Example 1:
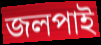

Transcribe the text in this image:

জলপাই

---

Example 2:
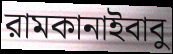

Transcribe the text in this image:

রামকানাইবাবু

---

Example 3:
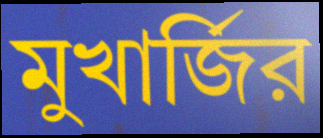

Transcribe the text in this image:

মুখার্জির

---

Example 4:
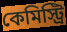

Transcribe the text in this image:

কেমিস্ট্রি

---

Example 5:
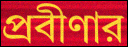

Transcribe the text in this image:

প্রবীণার